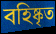
বহিষ্কৃত